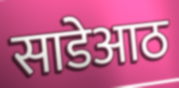
साडेआठ